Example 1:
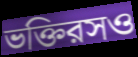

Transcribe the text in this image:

ভক্তিরসও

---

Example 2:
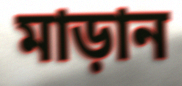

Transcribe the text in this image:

মাড়ান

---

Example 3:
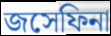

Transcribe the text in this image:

জসেফিনা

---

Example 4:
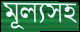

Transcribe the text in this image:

মূল্যসহ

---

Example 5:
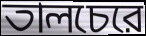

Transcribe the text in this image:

তালচেরে